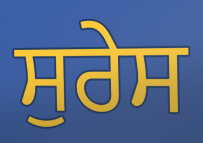
ਸੁਰੇਸ